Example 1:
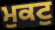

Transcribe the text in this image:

ਮੁਕਟੁ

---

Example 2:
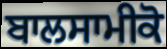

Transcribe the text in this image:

ਬਾਲਸਾਮੀਕੋ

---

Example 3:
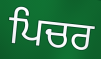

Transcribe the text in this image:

ਪਿਚਰ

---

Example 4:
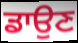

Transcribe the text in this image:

ਡਾਉਣ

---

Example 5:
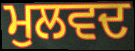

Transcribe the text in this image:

ਮੁਲਵਦ